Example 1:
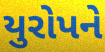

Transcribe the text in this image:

યુરોપને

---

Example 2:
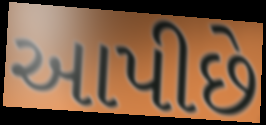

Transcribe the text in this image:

આપીછે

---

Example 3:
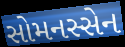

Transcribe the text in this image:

સોમનસ્સેન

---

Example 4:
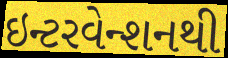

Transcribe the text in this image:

ઇન્ટરવેન્શનથી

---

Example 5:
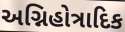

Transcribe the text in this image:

અગ્નિહોત્રાદિક